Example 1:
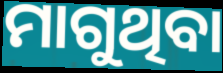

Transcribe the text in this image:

ମାଗୁଥିବା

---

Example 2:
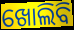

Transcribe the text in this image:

ଖୋଲିବି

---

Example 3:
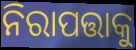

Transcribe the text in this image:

ନିରାପତ୍ତାକୁ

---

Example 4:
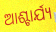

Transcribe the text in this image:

ଆଶ୍ଚାର୍ଯ୍ୟ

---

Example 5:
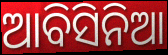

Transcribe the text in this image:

ଆବିସିନିଆ